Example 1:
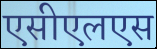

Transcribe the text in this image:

एसीएलएस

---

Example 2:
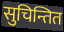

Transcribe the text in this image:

सुचिन्तित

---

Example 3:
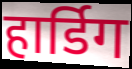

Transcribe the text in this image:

हार्डिग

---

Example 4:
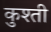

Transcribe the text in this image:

कुश्‍ती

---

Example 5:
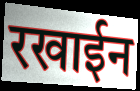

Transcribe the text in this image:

रखाईन